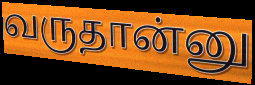
வருதான்னு